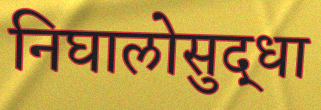
निघालोसुद्धा